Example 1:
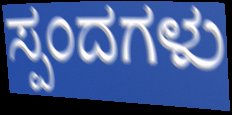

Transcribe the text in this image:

ಸ್ಪಂದಗಳು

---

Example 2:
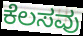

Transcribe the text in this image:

ಕೆಲಸವು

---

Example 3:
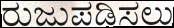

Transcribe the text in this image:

ರುಜುಪಡಿಸಲು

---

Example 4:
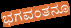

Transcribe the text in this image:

ಭಗವಂತನೂ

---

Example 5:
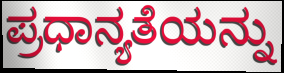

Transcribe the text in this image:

ಪ್ರಧಾನ್ಯತೆಯನ್ನು